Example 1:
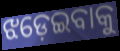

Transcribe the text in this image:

ଝଡ଼େଇବାକୁ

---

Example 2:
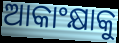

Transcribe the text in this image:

ଆକାଂକ୍ଷାକୁ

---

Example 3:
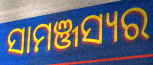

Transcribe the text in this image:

ସାମଞ୍ଜସ୍ୟର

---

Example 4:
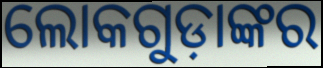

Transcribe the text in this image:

ଲୋକଗୁଡ଼ାଙ୍କର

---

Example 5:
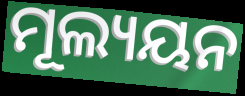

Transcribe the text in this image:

ମୂଲ୍ୟୟନ